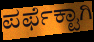
ಪರ್ಫೆಕ್ಟಾಗಿ